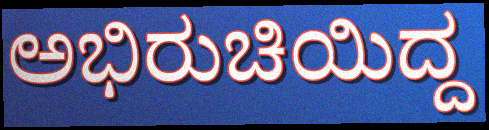
ಅಭಿರುಚಿಯಿದ್ದ